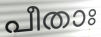
പീതാഃ